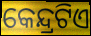
କେନ୍ଦ୍ରଟିଏ